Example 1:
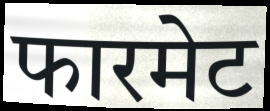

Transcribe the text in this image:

फारमेट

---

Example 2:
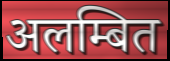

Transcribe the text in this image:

अलम्बित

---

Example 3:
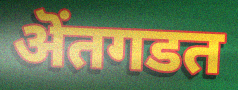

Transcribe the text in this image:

ऄंतगडत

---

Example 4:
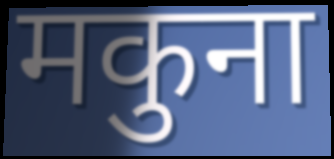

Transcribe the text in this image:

मकुना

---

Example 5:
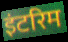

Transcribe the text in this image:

इंटरिम